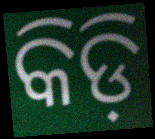
କିଡ଼ି